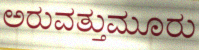
ಅರುವತ್ತುಮೂರು